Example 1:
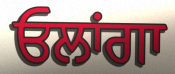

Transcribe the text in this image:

ਓਲਾਂਗਾ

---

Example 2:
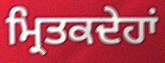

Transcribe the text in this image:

ਮ੍ਰਿਤਕਦੇਹਾਂ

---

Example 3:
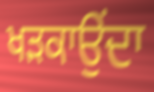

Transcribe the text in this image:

ਖੜਕਾਉਂਦਾ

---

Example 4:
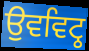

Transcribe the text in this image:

ਉਵਵਿਟ੍ਠ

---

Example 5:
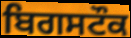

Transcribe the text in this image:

ਬਿਗਸਟੌਕ